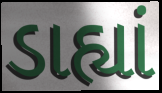
ડાહ્યાં